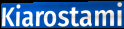
Kiarostami